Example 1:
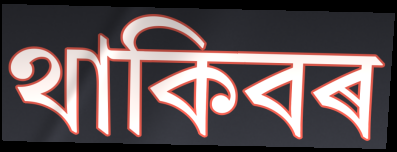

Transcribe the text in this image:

থাকিবৰ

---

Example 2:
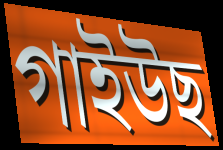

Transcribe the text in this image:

গাইউছ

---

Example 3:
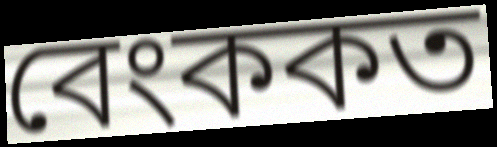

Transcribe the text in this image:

বেংককত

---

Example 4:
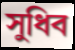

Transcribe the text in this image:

সুধিব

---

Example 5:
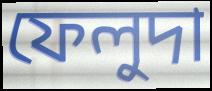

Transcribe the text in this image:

ফেলুদা